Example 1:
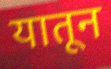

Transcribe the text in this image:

यातून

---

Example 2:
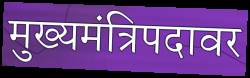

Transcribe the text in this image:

मुख्यमंत्रिपदावर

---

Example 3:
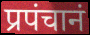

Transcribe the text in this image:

प्रपंचानं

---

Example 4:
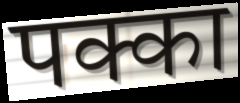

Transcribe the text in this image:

पक्का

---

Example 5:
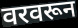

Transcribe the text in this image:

वरवरून